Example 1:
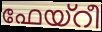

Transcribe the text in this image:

ഫേയ്റീ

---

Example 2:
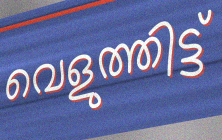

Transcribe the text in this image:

വെളുത്തിട്ട്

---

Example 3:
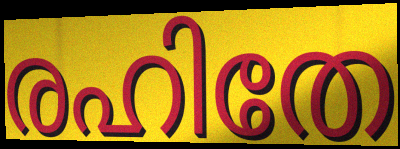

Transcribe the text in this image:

രഹിതേ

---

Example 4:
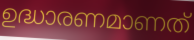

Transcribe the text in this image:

ഉദ്ധാരണമാണത്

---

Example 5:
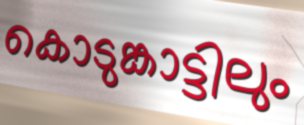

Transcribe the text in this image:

കൊടുങ്കാട്ടിലും